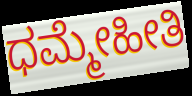
ಧಮ್ಮೇಹೀತಿ